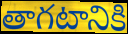
తాగటానికి